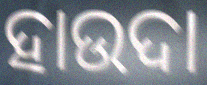
ହାଉଦା